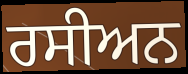
ਰਸੀਅਨ